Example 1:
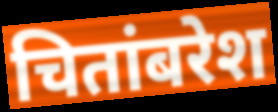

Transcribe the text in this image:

चितांबरेश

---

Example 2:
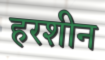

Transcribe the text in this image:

हरशीन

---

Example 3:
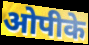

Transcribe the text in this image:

ओपीके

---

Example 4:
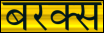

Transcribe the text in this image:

बरक्स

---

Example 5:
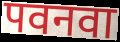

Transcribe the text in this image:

पवनवा